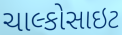
ચાલ્કોસાઇટ